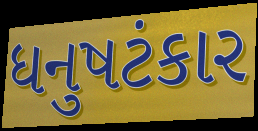
ધનુષટંકાર